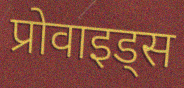
प्रोवाइड्स